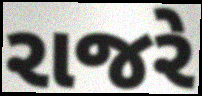
રાજરે